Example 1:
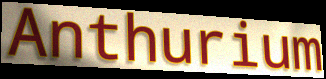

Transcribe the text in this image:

Anthurium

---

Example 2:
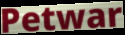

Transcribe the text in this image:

Petwar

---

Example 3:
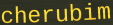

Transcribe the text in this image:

cherubim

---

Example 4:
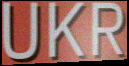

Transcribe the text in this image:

UKR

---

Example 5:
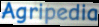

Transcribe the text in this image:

Agripedia